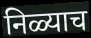
निळ्याच